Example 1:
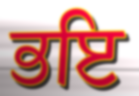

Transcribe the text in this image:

ਭਇ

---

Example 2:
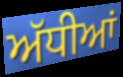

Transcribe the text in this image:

ਅੱਧੀਆਂ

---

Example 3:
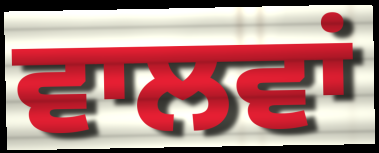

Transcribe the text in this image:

ਵਾਲਵਾਂ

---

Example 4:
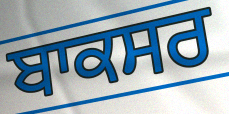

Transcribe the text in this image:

ਬਾਕਸਰ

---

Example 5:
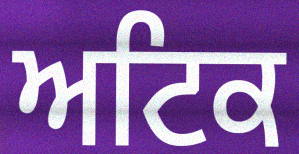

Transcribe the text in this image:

ਅਟਿਕ